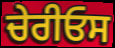
ਚੇਰੀਓਸ